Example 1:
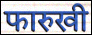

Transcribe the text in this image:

फारुखी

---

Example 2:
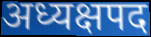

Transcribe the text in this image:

अध्यक्षपद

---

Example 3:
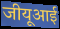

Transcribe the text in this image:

जीयूआई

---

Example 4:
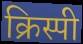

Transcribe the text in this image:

क्रिस्पी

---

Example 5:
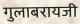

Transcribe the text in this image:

गुलाबरायजी